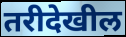
तरीदेखील